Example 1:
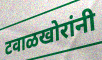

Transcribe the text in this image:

टवाळखोरांनी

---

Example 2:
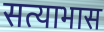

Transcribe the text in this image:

सत्याभास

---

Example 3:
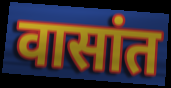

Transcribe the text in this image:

वासांत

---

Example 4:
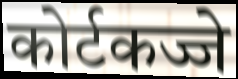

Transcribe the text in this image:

कोर्टकज्जे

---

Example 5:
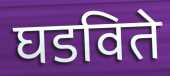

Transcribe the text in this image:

घडविते